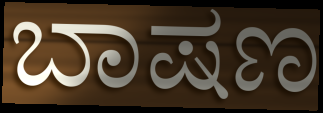
ಬಾಷಣ